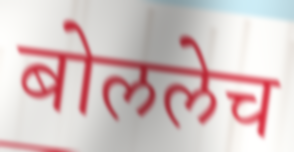
बोललेच